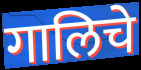
गालिचे